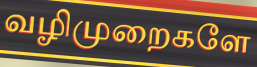
வழிமுறைகளே